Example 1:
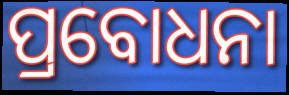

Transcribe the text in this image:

ପ୍ରବୋଧନା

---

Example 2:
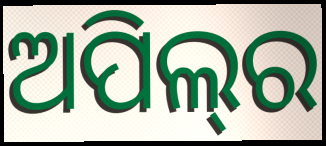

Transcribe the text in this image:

ଅପିଲ୍‍ର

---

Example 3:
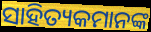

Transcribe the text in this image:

ସାହିତ୍ୟକମାନଙ୍କ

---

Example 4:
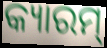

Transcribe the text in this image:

କ୍ୟାରମ୍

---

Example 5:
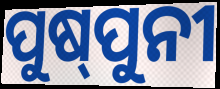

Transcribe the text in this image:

ପୁଷ୍‌ପୁନୀ